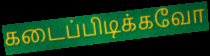
கடைப்பிடிக்கவோ